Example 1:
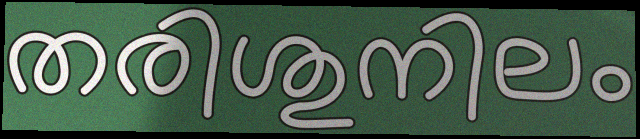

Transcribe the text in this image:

തരിശുനിലം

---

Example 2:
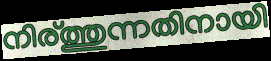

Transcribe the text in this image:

നിര്ത്തുന്നതിനായി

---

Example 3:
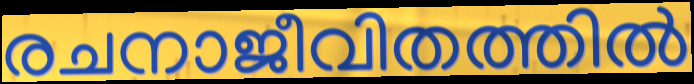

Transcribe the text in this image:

രചനാജീവിതത്തിൽ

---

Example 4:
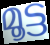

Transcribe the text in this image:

മൂട്ട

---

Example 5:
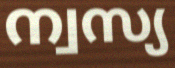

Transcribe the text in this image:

ന്വസ്യ